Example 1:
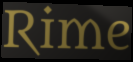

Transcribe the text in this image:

Rime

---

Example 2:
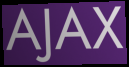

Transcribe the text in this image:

AJAX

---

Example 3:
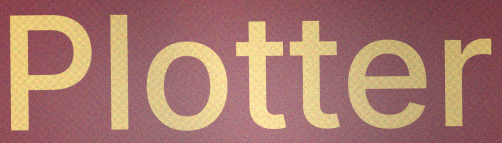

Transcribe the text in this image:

Plotter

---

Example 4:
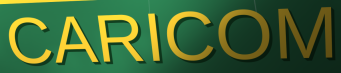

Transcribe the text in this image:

CARICOM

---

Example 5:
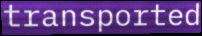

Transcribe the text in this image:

transported